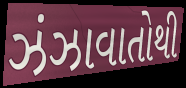
ઝંઝાવાતોથી